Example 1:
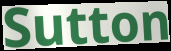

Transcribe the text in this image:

Sutton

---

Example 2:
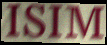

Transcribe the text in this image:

ISIM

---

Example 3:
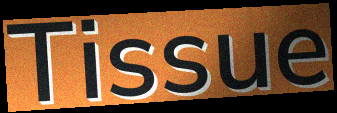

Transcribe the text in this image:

Tissue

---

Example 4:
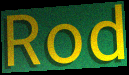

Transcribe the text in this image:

Rod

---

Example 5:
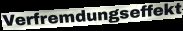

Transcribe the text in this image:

Verfremdungseffekt